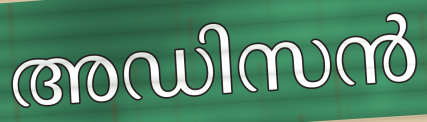
അഡിസൻ